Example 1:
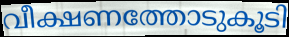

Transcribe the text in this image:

വീക്ഷണത്തോടുകൂടി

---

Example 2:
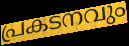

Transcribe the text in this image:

പ്രകടനവും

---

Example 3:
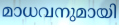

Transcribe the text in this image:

മാധവനുമായി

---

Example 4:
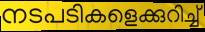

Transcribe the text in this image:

നടപടികളെക്കുറിച്ച്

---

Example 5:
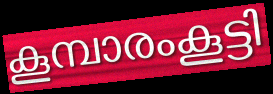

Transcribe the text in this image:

കൂമ്പാരംകൂട്ടി